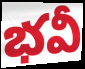
భవీ